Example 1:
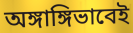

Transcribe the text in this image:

অঙ্গাঙ্গিভাবেই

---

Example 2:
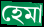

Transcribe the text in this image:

হেমা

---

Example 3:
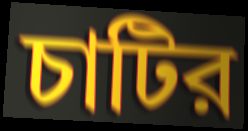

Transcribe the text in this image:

চাটির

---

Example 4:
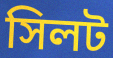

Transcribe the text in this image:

সিলট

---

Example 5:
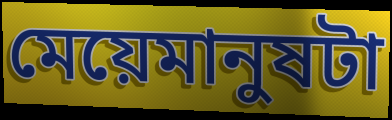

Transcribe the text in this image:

মেয়েমানুষটা